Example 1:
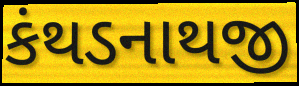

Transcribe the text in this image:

કંથડનાથજી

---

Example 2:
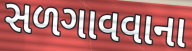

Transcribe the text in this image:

સળગાવવાના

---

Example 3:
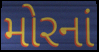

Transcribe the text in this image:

મોરનાં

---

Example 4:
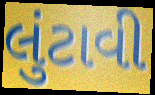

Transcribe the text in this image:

લુંટાવી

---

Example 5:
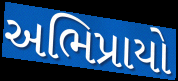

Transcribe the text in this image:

અભિપ્રાયો